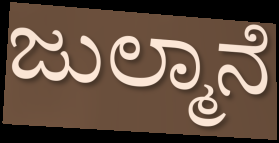
ಜುಲ್ಮಾನೆ